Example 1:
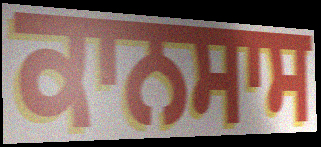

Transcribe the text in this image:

ਕਾਨਸਾਸ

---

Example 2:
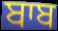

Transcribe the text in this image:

ਬਾਬ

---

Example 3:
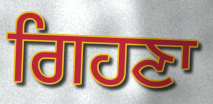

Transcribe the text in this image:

ਗਿਹਣਾ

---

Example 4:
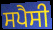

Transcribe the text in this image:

ਸਪੈਸੀ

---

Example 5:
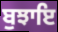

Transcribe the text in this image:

ਬੁਝਾਇ